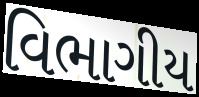
વિભાગીય